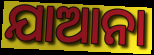
ଯାଆନା